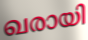
ഖരായി